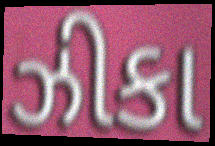
ઝીકા